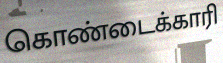
கொண்டைக்காரி